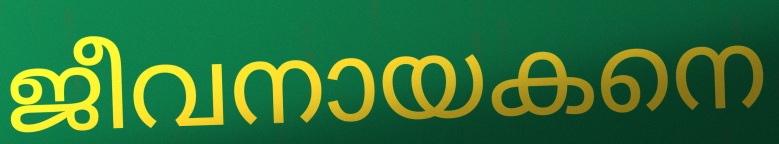
ജീവനായകനെ